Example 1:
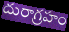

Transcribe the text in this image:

దురాగ్రహం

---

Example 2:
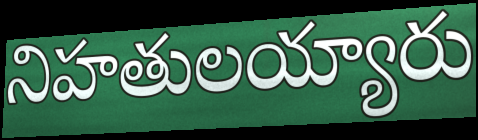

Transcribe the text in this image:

నిహతులయ్యారు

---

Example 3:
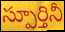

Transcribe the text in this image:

స్పూర్తినీ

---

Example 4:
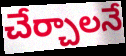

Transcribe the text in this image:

చేర్చాలనే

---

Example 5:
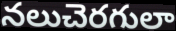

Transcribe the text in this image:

నలుచెరగులా